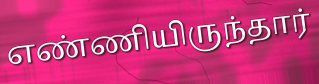
எண்ணியிருந்தார்